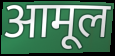
आमूल